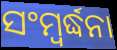
ସଂମ୍ବର୍ଦ୍ଧନା